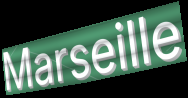
Marseille